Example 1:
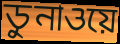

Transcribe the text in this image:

ডুনাওয়ে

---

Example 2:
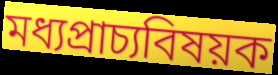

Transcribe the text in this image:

মধ্যপ্রাচ্যবিষয়ক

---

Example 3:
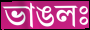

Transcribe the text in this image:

ভাঙলঃ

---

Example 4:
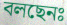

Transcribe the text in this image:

বলছেনঃ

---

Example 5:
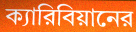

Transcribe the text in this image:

ক্যারিবিয়ানের